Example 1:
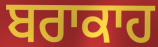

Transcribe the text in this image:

ਬਰਾਕਾਹ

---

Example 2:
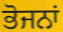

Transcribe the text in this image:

ਭੋਜਨਾਂ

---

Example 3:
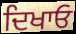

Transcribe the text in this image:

ਦਿਖਾਓ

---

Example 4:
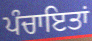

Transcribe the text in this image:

ਪੰਚਾਇਤਾਂ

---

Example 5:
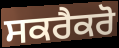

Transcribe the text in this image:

ਸਕਰੈਕਰੋ